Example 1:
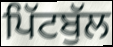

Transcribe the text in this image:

ਪਿੱਟਬੁੱਲ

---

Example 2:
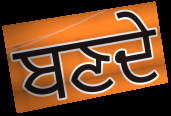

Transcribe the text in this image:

ਬਣਦੇ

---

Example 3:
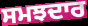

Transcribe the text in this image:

ਸਮਝਦਾਰ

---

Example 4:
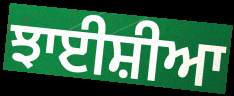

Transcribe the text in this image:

ਝਾਈਸ਼ੀਆ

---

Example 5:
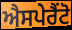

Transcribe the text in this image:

ਐਸਪੇਰੈਂਟੋ